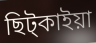
ছিট্কাইয়া